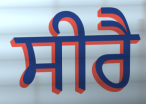
ਸੀਰੈ